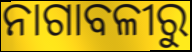
ନାଗାବଳୀରୁ